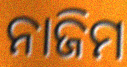
ନାଜିମ